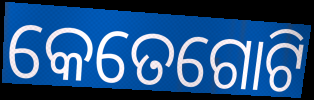
କେତେଗୋଟି